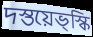
দস্তয়েভ্স্কি